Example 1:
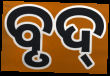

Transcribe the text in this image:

ବୃଦ୍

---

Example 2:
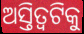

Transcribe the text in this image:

ଅସ୍ତିତ୍ୱଟିକୁ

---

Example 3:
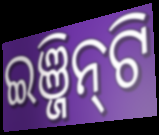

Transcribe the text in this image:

ଇଞ୍ଜିନ୍‌ଟି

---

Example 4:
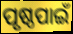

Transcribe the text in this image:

ପୃଷ୍ଠପାଇଁ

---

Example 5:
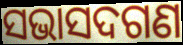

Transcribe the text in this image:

ସଭାସଦଗଣ